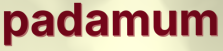
padamum